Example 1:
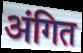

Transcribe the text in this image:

अंगित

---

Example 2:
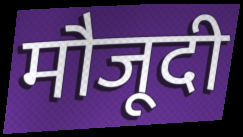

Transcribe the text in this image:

मौजूदी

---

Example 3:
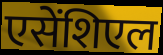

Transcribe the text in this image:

एसेंशिएल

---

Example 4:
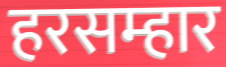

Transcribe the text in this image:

हरसम्हार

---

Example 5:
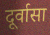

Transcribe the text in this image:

दूर्वासा